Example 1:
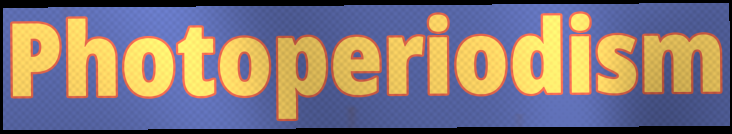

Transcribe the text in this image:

Photoperiodism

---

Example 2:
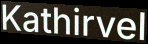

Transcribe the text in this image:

Kathirvel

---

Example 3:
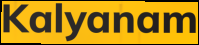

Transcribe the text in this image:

Kalyanam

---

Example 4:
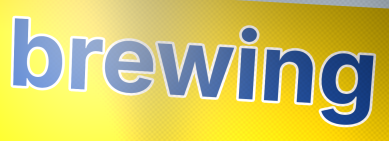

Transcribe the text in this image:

brewing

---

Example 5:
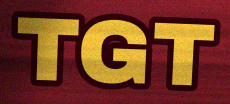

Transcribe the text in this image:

TGT